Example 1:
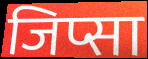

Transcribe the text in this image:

जिप्सा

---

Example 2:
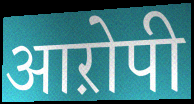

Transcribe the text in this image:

आऱोपी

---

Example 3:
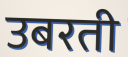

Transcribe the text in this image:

उबरती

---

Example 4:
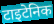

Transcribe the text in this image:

टाइटेनिक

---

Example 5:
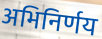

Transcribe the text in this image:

अभिनिर्णय